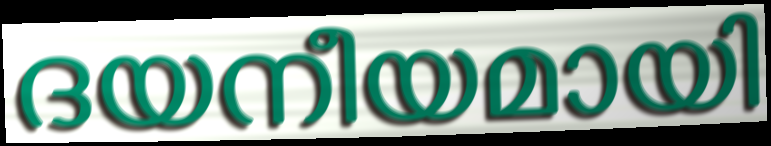
ദയനീയമായി